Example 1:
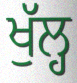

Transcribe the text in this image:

ਖੁੱਲ੍ਹ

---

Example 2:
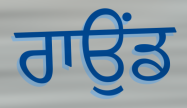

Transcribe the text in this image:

ਰਾਉਂਡ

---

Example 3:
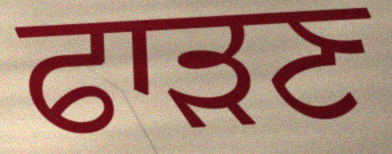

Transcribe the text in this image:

ਫਾੜਣ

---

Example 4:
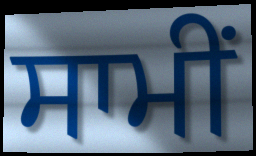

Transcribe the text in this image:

ਸਾਮੀਂ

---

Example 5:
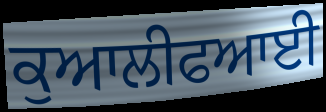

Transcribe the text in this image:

ਕੁਆਲੀਫਆਈ